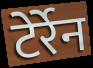
टेर्रेन